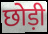
छोड़ी